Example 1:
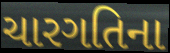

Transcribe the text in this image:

ચારગતિના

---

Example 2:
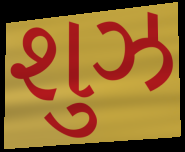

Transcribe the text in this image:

શુઝ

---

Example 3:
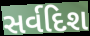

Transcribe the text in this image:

સર્વદિશ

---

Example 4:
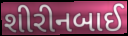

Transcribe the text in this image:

શીરીનબાઈ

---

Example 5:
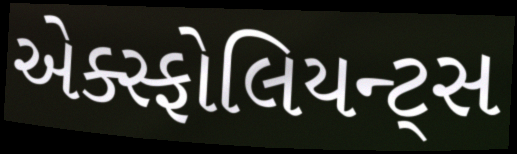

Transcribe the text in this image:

એક્સ્ફોલિયન્ટ્સ